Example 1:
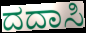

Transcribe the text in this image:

ದದಾಸಿ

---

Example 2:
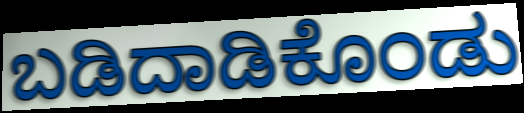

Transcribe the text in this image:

ಬಡಿದಾಡಿಕೊಂಡು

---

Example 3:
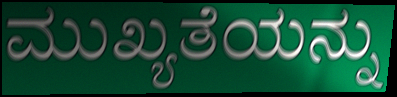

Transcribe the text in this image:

ಮುಖ್ಯತೆಯನ್ನು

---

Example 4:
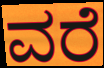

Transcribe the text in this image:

ವರೆ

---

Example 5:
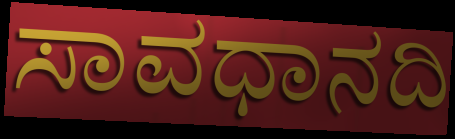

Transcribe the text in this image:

ಸಾವಧಾನದಿ